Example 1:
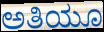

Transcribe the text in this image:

ಅತಿಯೂ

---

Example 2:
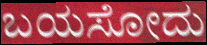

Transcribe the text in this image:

ಬಯಸೋದು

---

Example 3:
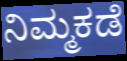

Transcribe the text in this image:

ನಿಮ್ಮಕಡೆ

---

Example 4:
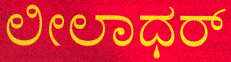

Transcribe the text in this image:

ಲೀಲಾಧರ್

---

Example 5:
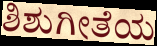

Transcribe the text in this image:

ಶಿಶುಗೀತೆಯ